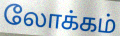
லோக்கம்